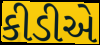
કીડીએ